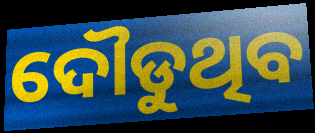
ଦୌଡୁଥିବ